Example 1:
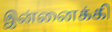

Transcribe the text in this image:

இன்னைக்கி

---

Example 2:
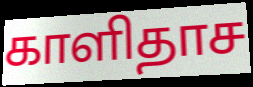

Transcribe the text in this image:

காளிதாச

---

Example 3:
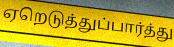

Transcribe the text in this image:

ஏறெடுத்துப்பார்த்து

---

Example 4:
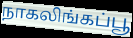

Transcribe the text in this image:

நாகலிங்கப்பூ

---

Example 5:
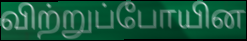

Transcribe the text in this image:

விற்றுப்போயின